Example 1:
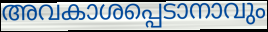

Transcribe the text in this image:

അവകാശപ്പെടാനാവും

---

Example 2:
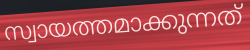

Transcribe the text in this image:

സ്വായത്തമാക്കുന്നത്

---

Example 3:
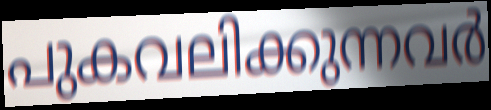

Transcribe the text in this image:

പുകവലിക്കുന്നവർ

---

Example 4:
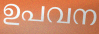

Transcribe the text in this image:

ഉപവന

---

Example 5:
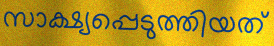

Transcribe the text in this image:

സാക്ഷ്യപ്പെടുത്തിയത്